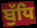
ਬੁੱਧਿ